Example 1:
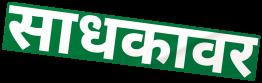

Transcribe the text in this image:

साधकावर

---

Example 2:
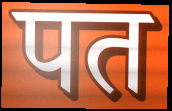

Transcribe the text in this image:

पत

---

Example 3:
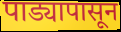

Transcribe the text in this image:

पाड्यापासून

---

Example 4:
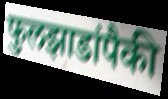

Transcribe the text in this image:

फुलझाडांपैकी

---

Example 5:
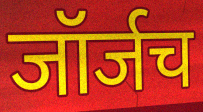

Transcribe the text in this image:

जॉर्जच